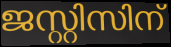
ജസ്റ്റിസിന്